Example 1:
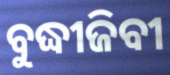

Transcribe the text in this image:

ବୁଦ୍ଧୀଜିବୀ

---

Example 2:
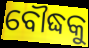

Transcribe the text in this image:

ବୌଦ୍ଧକୁ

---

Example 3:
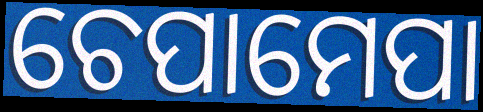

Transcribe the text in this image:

ଚେପାମେପା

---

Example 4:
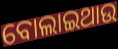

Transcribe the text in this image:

ବୋଲାଇଥାଉ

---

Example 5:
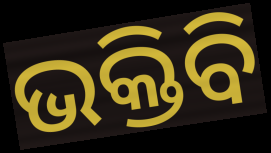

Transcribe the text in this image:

ଭକ୍ତିବି